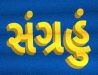
સંગ્રહું